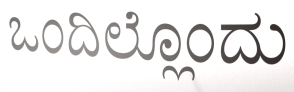
ಒಂದಿಲ್ಲೊಂದು